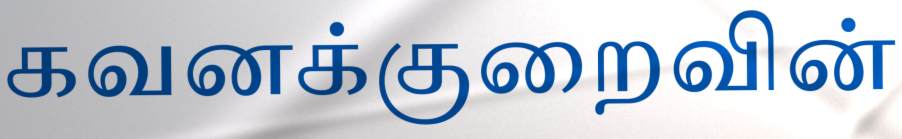
கவனக்குறைவின்